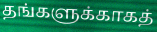
தங்களுக்காகத்